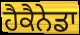
ਹੈਕੈਨੇਡਾ